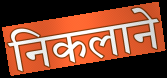
निकलाने